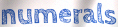
numerals